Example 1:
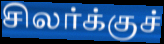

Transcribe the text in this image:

சிலர்க்குச்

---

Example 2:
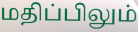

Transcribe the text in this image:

மதிப்பிலும்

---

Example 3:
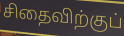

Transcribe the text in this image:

சிதைவிற்குப்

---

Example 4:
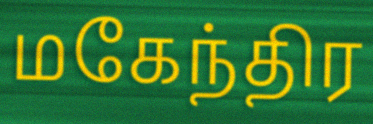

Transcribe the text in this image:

மகேந்திர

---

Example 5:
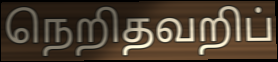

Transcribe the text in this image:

நெறிதவறிப்